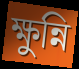
ক্ষুন্নি